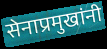
सेनाप्रमुखांनी